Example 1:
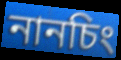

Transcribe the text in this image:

নানচিং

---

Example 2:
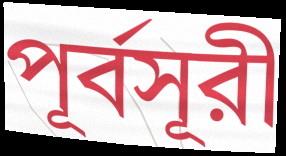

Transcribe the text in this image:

পূর্বসূরী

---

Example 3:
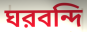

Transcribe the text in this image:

ঘরবন্দি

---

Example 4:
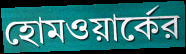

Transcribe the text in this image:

হোমওয়ার্কের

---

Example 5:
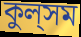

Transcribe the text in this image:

কুল্‌সম